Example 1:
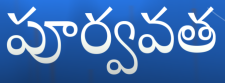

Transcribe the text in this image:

పూర్వవత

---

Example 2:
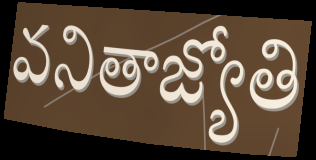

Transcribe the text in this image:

వనితాజ్యోతి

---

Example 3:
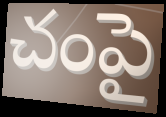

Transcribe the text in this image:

చంపై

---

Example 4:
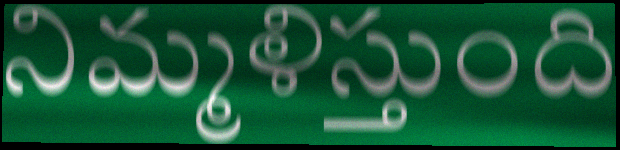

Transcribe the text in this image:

నిమ్మళిస్తుంది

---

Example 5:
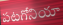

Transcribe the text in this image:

పటగోనియా